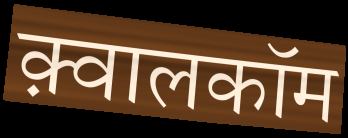
क़्वालकॉम